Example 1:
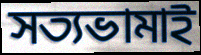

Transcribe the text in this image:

সত্যভামাই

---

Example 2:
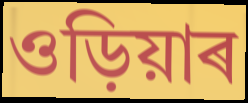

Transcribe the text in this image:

ওড়িয়াৰ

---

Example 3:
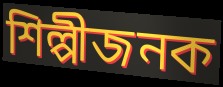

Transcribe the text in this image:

শিল্পীজনক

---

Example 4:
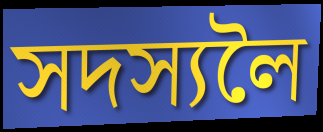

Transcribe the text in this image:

সদস্যলৈ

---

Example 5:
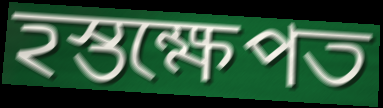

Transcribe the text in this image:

হস্তক্ষেপত